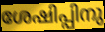
ശേഷിപ്പിനു